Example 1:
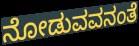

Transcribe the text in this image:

ನೋಡುವವನಂತೆ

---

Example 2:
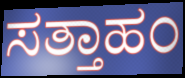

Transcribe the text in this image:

ಸತ್ತಾಹಂ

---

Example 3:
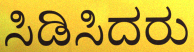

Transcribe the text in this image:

ಸಿಡಿಸಿದರು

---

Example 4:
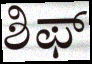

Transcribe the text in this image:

ಶಿಫ್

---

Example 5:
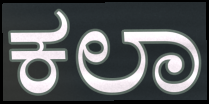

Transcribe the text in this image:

ಕಲಾ